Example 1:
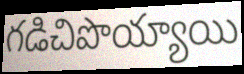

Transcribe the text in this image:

గడిచిపొయ్యాయి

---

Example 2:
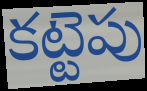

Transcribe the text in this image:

కట్టెపు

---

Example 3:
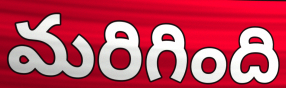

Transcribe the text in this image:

మరిగింది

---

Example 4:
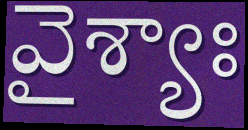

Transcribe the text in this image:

వైశ్యాః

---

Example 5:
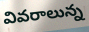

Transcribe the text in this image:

వివరాలున్న